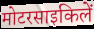
मोटरसाइकिलें